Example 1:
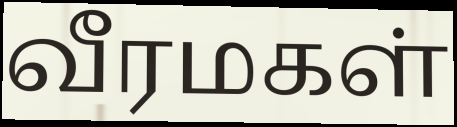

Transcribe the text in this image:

வீரமகள்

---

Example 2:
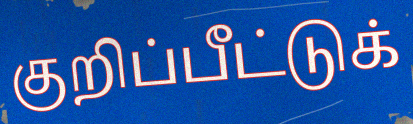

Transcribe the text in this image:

குறிப்பீட்டுக்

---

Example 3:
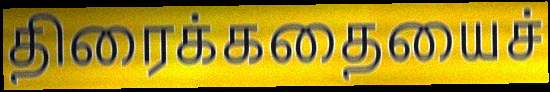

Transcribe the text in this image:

திரைக்கதையைச்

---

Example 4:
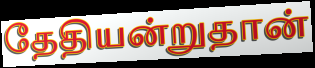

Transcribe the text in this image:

தேதியன்றுதான்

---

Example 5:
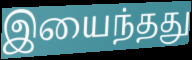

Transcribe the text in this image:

இயைந்தது